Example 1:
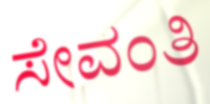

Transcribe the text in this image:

ಸೇವಂತಿ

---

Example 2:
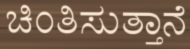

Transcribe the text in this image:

ಚಿಂತಿಸುತ್ತಾನೆ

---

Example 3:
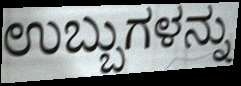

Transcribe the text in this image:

ಉಬ್ಬುಗಳನ್ನು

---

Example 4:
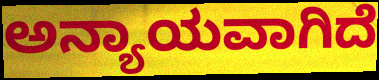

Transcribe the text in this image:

ಅನ್ಯಾಯವಾಗಿದೆ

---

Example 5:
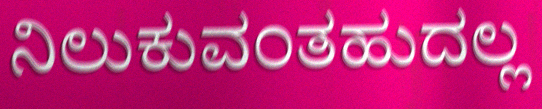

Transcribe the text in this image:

ನಿಲುಕುವಂತಹುದಲ್ಲ